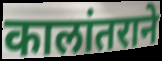
कालांतराने